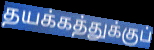
தயக்கத்துக்குப்